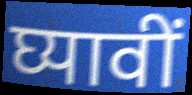
घ्यावीं